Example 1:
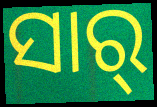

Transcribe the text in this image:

ସାର୍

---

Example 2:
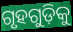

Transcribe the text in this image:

ଗୃହଗୁଡ଼ିକୁ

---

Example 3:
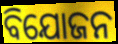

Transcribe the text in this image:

ବିଯୋଜନ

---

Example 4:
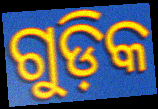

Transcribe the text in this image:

ଗୁଡ଼ିକ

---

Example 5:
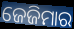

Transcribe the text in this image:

ଜେଜିମାର